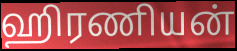
ஹிரணியன்